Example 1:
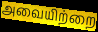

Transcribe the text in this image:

அவையிற்றை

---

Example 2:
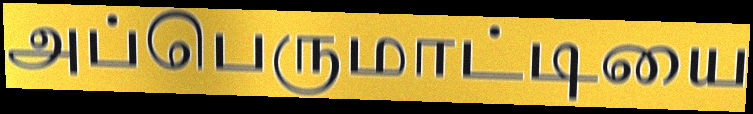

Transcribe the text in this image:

அப்பெருமாட்டியை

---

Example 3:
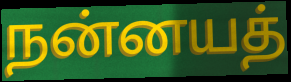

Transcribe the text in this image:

நன்னயத்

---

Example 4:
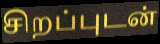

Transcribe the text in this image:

சிறப்புடன்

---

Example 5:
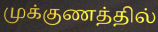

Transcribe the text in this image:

முக்குணத்தில்